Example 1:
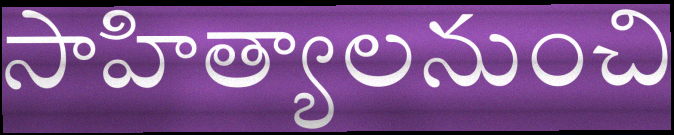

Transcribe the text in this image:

సాహిత్యాలనుంచి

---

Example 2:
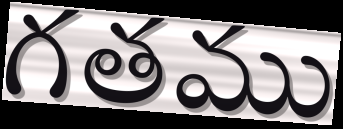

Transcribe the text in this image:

గతము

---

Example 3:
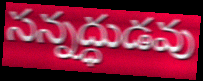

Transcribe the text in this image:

సన్నద్ధుడవు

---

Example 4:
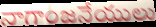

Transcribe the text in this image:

నాగాంజనేయులు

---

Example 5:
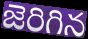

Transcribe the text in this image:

జెరిగిన